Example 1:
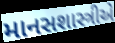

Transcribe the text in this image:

માનસશાસ્ત્રીએ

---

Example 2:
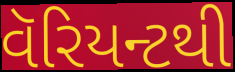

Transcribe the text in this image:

વૅરિયન્ટથી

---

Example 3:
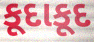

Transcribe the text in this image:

કૂદાકૂદ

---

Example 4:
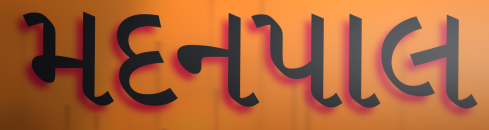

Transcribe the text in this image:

મદનપાલ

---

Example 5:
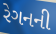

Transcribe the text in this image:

રેગનની